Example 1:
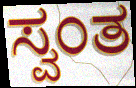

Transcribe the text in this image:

ಸ್ವಂತ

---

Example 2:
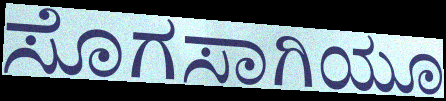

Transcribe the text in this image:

ಸೊಗಸಾಗಿಯೂ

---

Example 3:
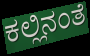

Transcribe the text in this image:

ಕಲ್ಲಿನಂತೆ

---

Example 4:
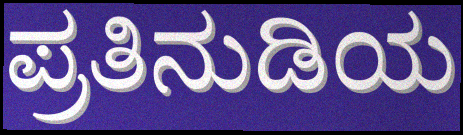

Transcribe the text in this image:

ಪ್ರತಿನುಡಿಯ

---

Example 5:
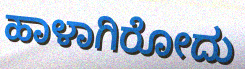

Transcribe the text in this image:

ಹಾಳಾಗಿರೋದು